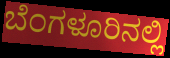
ಬೆಂಗಳೂರಿನಲ್ಲಿ